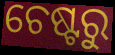
ଚେଷ୍ଟରୁ